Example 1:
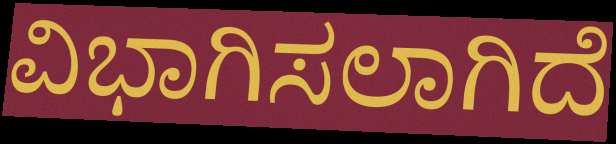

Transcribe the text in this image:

ವಿಭಾಗಿಸಲಾಗಿದೆ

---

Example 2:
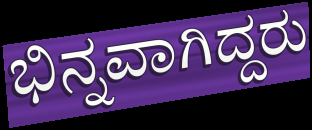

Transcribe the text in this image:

ಭಿನ್ನವಾಗಿದ್ದರು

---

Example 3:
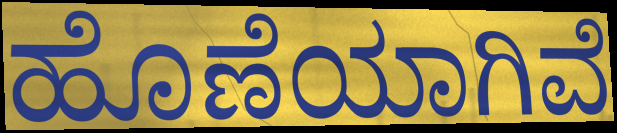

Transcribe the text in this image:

ಹೊಣೆಯಾಗಿವೆ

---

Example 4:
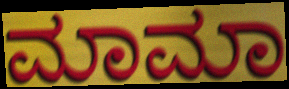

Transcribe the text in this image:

ಮಾಮಾ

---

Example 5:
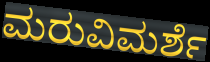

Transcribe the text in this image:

ಮರುವಿಮರ್ಶೆ